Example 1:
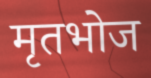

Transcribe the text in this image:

मृतभोज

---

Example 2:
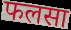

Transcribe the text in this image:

फलसा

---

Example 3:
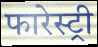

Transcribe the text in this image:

फारेस्ट्री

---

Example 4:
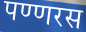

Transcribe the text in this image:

पण्णरस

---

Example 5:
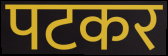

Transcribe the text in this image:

पटकर